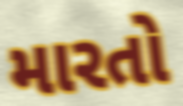
મારતો